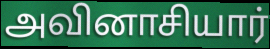
அவினாசியார்